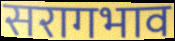
सरागभाव